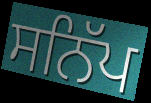
ਸਨਿੱਪ